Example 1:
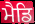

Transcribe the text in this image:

ਮੈਡਿ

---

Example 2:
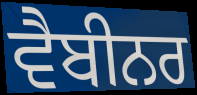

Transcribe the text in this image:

ਵੈਬੀਨਰ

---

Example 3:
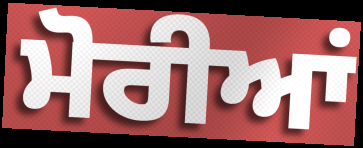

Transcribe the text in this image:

ਮੋਰੀਆਂ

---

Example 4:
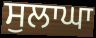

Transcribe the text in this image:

ਸੁਲਾਘਾ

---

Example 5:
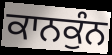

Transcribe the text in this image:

ਕਾਨਕੁੰਨ